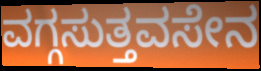
ವಗ್ಗಸುತ್ತವಸೇನ